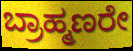
ಬ್ರಾಹ್ಮಣರೇ